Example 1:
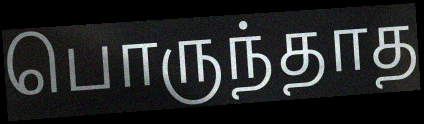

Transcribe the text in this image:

பொருந்தாத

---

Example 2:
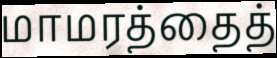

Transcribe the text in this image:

மாமரத்தைத்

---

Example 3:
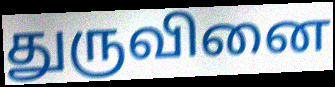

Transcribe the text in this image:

துருவினை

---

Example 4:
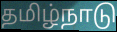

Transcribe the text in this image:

தமிழ்நாடு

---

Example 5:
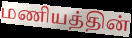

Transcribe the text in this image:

மணியத்தின்